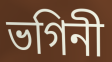
ভগিনী